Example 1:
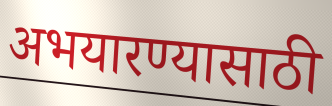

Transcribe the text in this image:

अभयारण्यासाठी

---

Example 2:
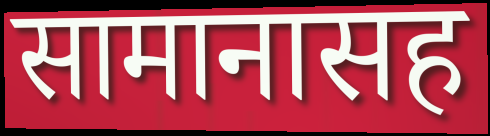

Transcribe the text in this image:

सामानासह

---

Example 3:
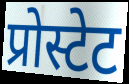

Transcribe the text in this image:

प्रोस्टेट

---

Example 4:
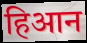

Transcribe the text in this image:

हिआन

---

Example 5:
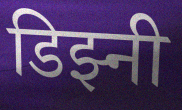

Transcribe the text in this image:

डिझ्नी